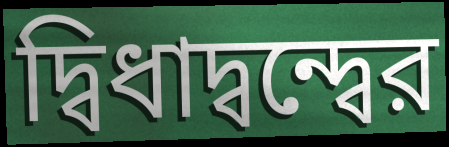
দ্বিধাদ্বন্দ্বের